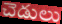
చెడులు